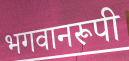
भगवानरूपी